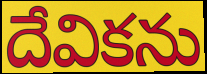
దేవికను